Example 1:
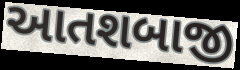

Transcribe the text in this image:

આતશબાજી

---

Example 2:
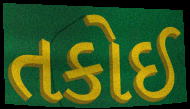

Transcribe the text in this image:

તકોઈ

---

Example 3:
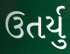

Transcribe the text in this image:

ઉતર્યુ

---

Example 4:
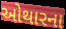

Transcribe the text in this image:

ઓથારના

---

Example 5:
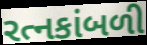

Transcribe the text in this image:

રત્નકાંબળી